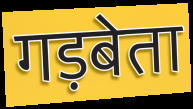
गड़बेता